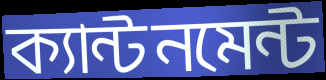
ক্যান্টনমেন্ট